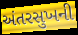
અંતરસુખની